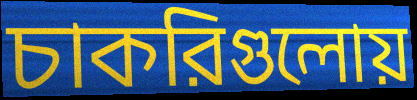
চাকরিগুলোয়